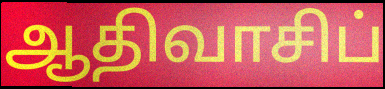
ஆதிவாசிப்